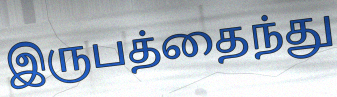
இருபத்தைந்து